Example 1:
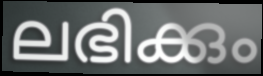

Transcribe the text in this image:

ലഭിക്കും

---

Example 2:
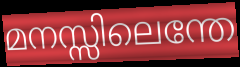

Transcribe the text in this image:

മനസ്സിലെന്തേ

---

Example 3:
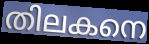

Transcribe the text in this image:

തിലകനെ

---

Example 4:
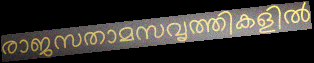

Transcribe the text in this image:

രാജസതാമസവൃത്തികളിൽ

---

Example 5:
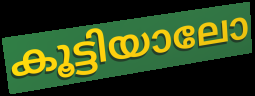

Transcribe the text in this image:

കൂട്ടിയാലോ